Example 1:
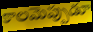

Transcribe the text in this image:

కాలమెప్పుడూ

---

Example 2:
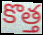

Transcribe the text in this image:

కొత్త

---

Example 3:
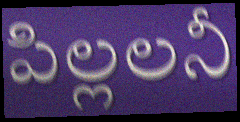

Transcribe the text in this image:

పిల్లలనీ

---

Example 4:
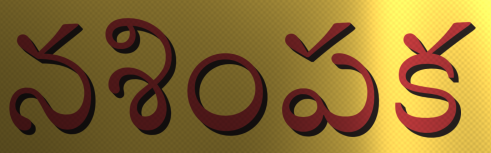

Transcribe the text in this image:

నశింపక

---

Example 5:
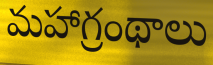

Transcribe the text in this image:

మహాగ్రంథాలు